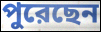
পুরেছেন